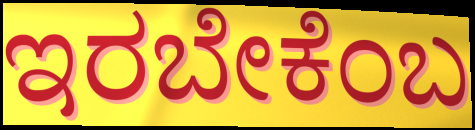
ಇರಬೇಕೆಂಬ